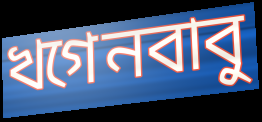
খগেনবাবু